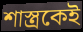
শাস্ত্রকেই